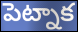
పెట్నాక